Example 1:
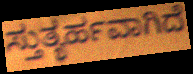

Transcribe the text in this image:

ಸ್ತುತ್ಯರ್ಹವಾಗಿದೆ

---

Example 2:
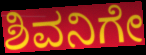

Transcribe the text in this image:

ಶಿವನಿಗೇ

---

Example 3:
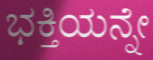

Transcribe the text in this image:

ಭಕ್ತಿಯನ್ನೇ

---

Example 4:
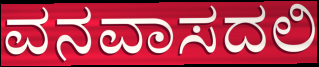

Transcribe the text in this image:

ವನವಾಸದಲಿ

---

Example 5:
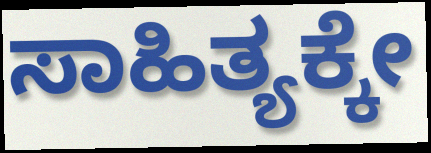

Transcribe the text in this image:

ಸಾಹಿತ್ಯಕ್ಕೇ